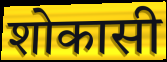
शोकासी